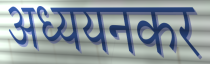
अध्ययनकर